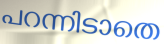
പറന്നിടാതെ